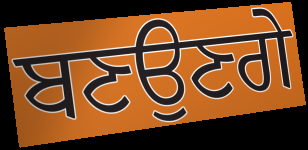
ਬਣਉਣਗੇ